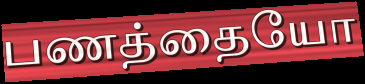
பணத்தையோ